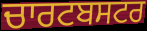
ਚਾਰਟਬਸਟਰ